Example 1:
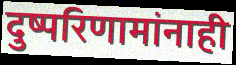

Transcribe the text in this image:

दुष्परिणामांनाही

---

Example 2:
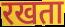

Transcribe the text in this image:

रखता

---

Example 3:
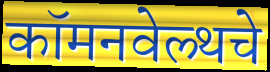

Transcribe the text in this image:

कॉमनवेल्थचे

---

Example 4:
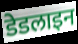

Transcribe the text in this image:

डेडलाइन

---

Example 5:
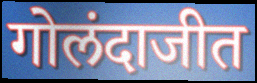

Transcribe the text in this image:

गोलंदाजीत